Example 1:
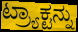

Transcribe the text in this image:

ಟ್ರ್ಯಾಕ್ಟನ್ನು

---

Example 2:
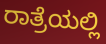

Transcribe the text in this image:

ರಾತ್ರೆಯಲ್ಲಿ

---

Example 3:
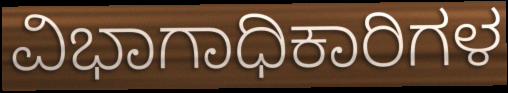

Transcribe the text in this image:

ವಿಭಾಗಾಧಿಕಾರಿಗಳ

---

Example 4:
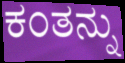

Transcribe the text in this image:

ಕಂತನ್ನು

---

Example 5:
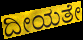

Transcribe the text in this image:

ದೀಯತೇ